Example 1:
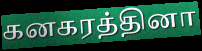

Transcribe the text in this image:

கனகரத்தினா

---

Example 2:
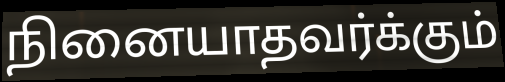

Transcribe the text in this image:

நினையாதவர்க்கும்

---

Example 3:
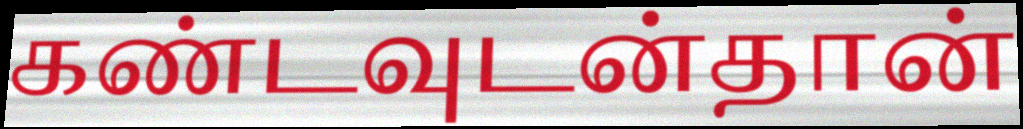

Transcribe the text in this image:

கண்டவுடன்தான்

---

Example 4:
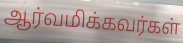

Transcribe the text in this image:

ஆர்வமிக்கவர்கள்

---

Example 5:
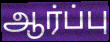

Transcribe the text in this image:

ஆர்ப்பு